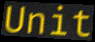
Unit